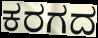
ಕರಗದ